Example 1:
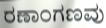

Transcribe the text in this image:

ರಣಾಂಗಣವು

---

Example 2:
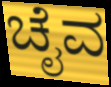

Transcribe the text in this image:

ಚೈವ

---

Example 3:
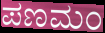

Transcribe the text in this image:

ಪಣಮಂ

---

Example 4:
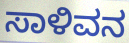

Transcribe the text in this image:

ಸಾಳಿವನ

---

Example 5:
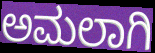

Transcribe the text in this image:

ಅಮಲಾಗಿ